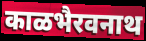
काळभैरवनाथ